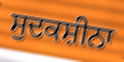
ਸੁਦਕਸ਼ੀਨਾ